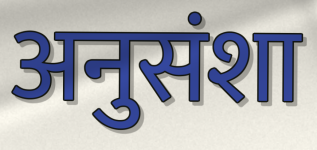
अनुसंशा